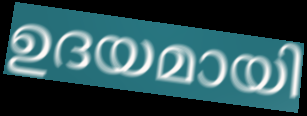
ഉദയമായി